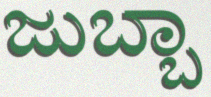
ಜುಬ್ಬಾ